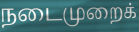
நடைமுறைக்